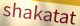
shakatat